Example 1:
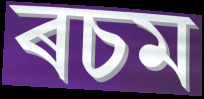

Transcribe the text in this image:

ৰচম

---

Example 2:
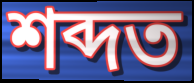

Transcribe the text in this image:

শব্দত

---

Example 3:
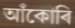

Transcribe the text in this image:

আঁকোৰি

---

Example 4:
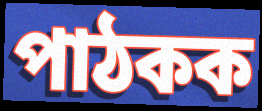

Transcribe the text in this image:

পাঠকক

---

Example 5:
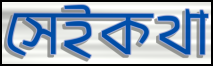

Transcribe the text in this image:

সেইকথা